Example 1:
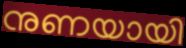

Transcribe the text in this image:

നുണയായി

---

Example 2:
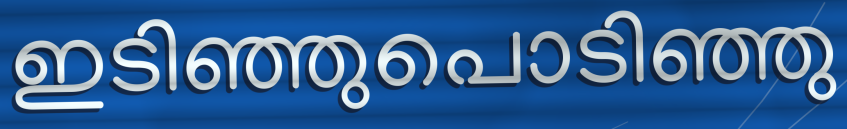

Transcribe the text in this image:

ഇടിഞ്ഞുപൊടിഞ്ഞു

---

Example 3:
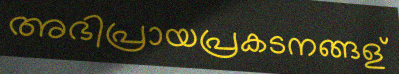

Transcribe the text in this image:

അഭിപ്രായപ്രകടനങ്ങള്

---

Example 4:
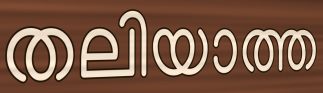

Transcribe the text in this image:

തലിയാത്ത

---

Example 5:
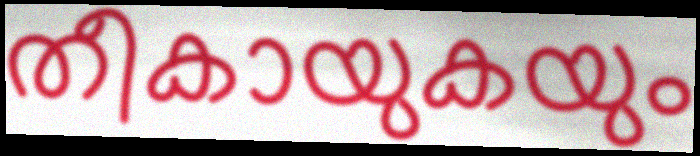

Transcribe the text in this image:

തീകായുകയും